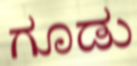
ಗೂಡು